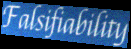
Falsifiability